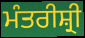
ਮੰਤਰੀਸ਼੍ਰੀ